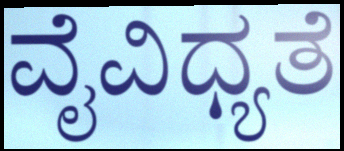
ವೈವಿಧ್ಯತೆ